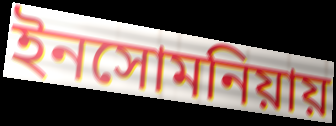
ইনসোমনিয়ায়